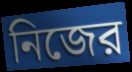
নিজের